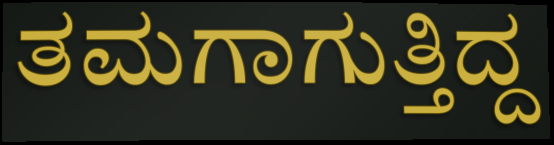
ತಮಗಾಗುತ್ತಿದ್ದ